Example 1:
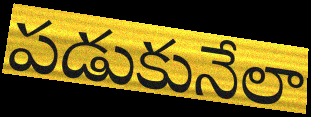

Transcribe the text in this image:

పడుకునేలా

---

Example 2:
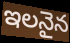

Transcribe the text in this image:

ఇలనైన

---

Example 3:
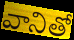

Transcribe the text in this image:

వానితో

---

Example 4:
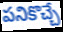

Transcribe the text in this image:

పనికొచ్చే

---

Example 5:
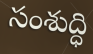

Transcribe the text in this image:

సంశుద్ధి